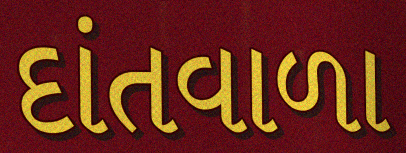
દાંતવાળા